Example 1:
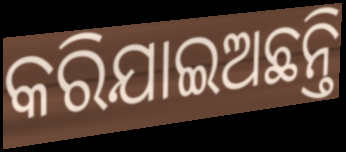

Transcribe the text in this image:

କରିଯାଇଅଛନ୍ତି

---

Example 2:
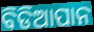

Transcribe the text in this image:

ବିଡିଆପାନ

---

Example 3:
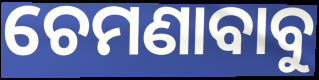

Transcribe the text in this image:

ଚେମଣାବାବୁ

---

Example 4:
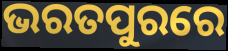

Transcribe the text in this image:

ଭରତପୁରରେ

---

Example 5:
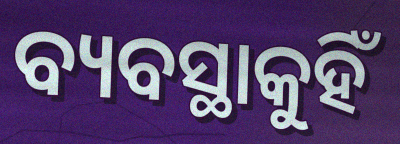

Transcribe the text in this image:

ବ୍ୟବସ୍ଥାକୁହିଁ